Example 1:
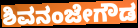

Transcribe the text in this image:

ಶಿವನಂಜೇಗೌಡ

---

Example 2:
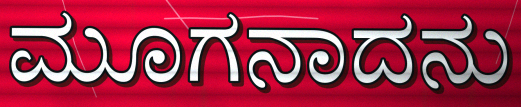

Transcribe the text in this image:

ಮೂಗನಾದನು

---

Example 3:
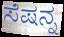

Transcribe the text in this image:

ಸೆಷನ್ನ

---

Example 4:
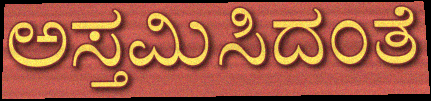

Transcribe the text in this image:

ಅಸ್ತಮಿಸಿದಂತೆ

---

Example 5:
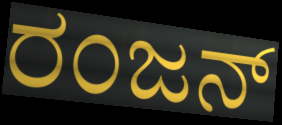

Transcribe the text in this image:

ರಂಜನ್